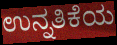
ಉನ್ನತಿಕೆಯ